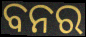
ବନର